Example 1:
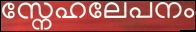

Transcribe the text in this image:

സ്നേഹലേപനം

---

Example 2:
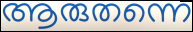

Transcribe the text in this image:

ആരുതന്നെ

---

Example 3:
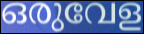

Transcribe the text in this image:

ഒരുവേള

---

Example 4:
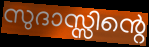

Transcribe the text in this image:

സുദാസ്സിന്റെ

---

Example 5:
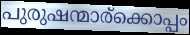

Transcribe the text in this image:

പുരുഷന്മാര്ക്കൊപ്പം